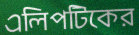
এলিপটিকের